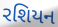
રશિયન